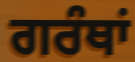
ਗਰੰਥਾਂ